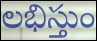
లభిస్తుం